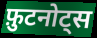
फ़ुटनोट्स